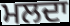
ਮਲਦਾ